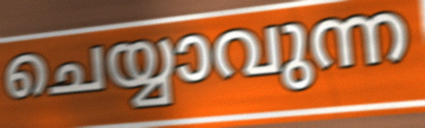
ചെയ്യാവുന്ന